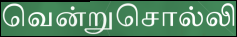
வென்றுசொல்லி